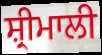
ਸ਼੍ਰੀਮਾਲੀ